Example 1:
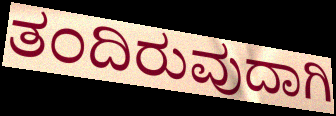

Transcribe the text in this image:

ತಂದಿರುವುದಾಗಿ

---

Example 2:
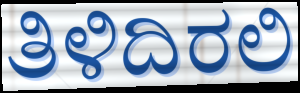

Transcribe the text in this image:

ತಿಳಿದಿರಲಿ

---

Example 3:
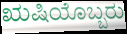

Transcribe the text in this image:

ಋಷಿಯೊಬ್ಬರು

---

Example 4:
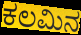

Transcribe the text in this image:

ಕಲಮಿನ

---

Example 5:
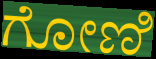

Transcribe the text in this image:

ಗೋಣಿ